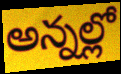
అన్నల్లో